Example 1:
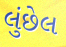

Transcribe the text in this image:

લુંછેલ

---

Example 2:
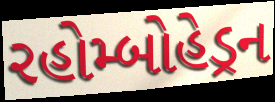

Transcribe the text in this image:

રહોમ્બોહેડ્રન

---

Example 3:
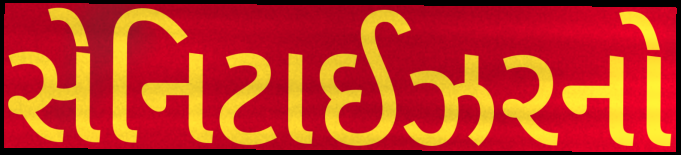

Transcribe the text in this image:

સેનિટાઈઝરનો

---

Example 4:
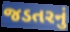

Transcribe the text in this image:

જડતરનું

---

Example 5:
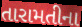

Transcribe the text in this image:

તારામતીના